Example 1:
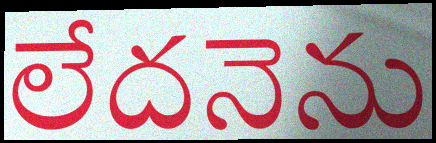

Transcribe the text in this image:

లేదనెను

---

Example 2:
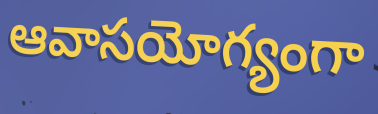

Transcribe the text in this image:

ఆవాసయోగ్యంగా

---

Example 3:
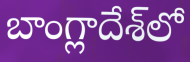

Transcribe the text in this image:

బాంగ్లాదేశ్‌లో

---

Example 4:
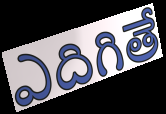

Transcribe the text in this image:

ఎదిగితే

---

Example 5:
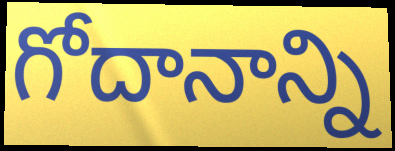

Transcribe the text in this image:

గోదానాన్ని